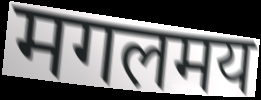
मगलमय